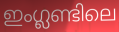
ഇംഗ്ലണ്ടിലെ